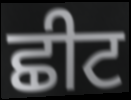
ਛੀਟ